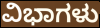
ವಿಭಾಗಳು